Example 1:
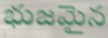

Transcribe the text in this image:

భుజమైన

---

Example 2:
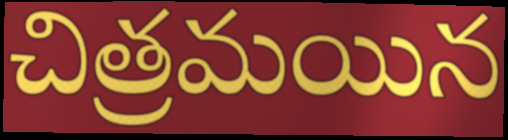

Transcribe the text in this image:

చిత్రమయిన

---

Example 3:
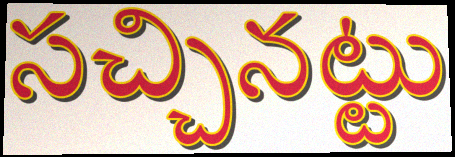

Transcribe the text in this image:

సచ్చినట్టు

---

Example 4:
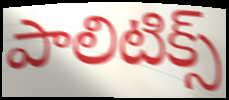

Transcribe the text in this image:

పాలిటిక్స్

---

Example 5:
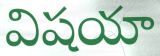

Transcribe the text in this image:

విషయా